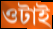
ওটাই